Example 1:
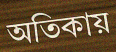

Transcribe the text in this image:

অতিকায়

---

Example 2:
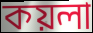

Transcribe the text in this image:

কয়লা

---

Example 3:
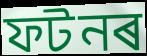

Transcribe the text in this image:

ফটনৰ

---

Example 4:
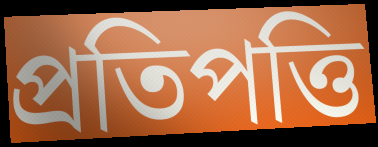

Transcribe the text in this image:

প্ৰতিপত্তি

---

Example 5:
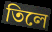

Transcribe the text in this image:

তিলে